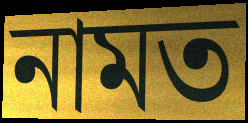
নামত